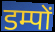
डम्पों